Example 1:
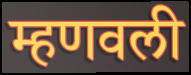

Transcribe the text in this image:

म्हणवली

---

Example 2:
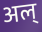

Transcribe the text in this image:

अल्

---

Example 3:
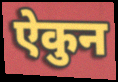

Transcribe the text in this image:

ऐकुन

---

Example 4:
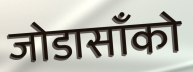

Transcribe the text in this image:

जोडासाँको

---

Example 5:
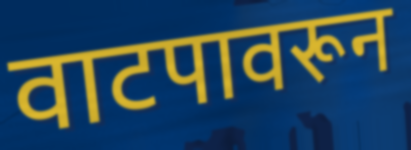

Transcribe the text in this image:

वाटपावरून